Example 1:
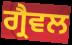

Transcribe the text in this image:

ਗ੍ਰੈਵਲ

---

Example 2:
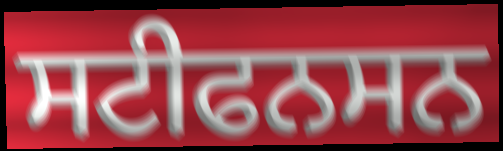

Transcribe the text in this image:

ਸਟੀਫਨਸਨ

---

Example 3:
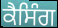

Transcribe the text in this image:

ਕੈਸਿੰਗ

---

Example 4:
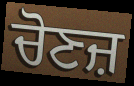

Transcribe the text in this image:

ਚੋਣਜ਼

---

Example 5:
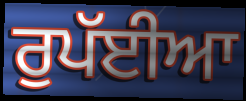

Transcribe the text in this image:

ਰੁਪੱਈਆ